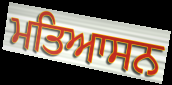
ਮਤਿਆਸਨ